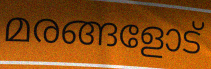
മരങ്ങളോട്